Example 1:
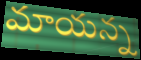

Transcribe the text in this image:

మాయన్న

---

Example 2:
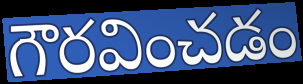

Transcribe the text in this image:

గౌరవించడం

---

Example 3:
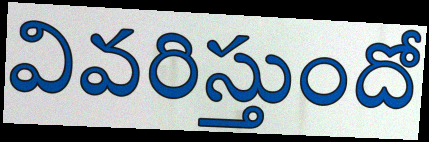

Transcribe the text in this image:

వివరిస్తుందో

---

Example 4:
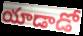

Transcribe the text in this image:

యాడాడో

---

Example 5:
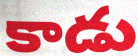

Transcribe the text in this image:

కాడు